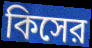
কিসের